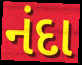
નંદા